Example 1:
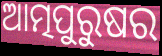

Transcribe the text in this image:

ଆତ୍ମପୁରୁଷର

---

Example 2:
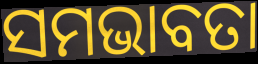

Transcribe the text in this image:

ସମଭାବତା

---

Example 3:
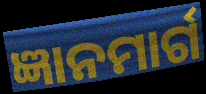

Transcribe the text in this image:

ଜ୍ଞାନମାର୍ଗ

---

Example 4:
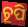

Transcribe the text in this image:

ଚୂପି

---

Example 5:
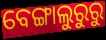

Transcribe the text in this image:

ବେଙ୍ଗାଲୁରୁରୁ